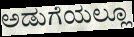
ಅಡುಗೆಯಲ್ಲೂ